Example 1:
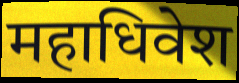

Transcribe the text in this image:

महाधिवेश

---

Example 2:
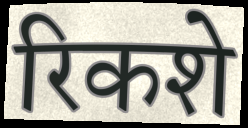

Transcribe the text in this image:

रिकशे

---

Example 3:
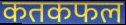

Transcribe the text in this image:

कतकफल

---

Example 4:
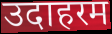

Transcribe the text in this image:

उदाहरम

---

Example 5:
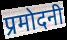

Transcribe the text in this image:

प्रमोदनी